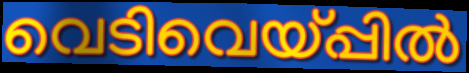
വെടിവെയ്പ്പിൽ